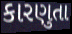
કારણુતા